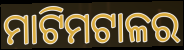
ମାଟିମଟାଳର